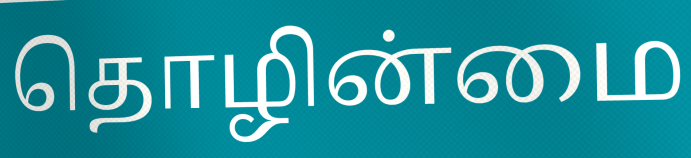
தொழின்மை